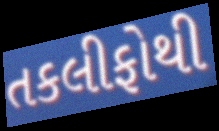
તકલીફોથી